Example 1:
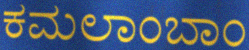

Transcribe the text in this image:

ಕಮಲಾಂಬಾಂ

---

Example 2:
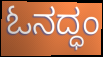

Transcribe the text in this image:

ಓನದ್ಧಂ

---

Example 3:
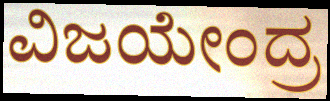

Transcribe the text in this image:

ವಿಜಯೇಂದ್ರ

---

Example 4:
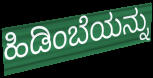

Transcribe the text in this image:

ಹಿಡಿಂಬೆಯನ್ನು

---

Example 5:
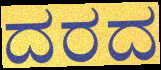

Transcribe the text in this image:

ದರದ